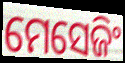
ମେସେଜିଂ